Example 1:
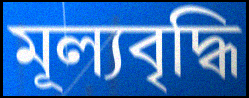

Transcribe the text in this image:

মূল্যবৃদ্ধি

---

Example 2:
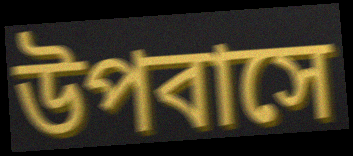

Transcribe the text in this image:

উপবাসে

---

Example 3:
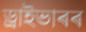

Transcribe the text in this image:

ড্ৰাইভাৰৰ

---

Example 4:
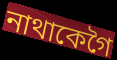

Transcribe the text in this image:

নাথাকেগৈ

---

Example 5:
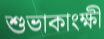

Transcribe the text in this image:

শুভাকাংক্ষী